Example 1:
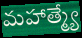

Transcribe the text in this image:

మహాత్మ్యే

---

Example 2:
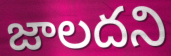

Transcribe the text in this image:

జాలదని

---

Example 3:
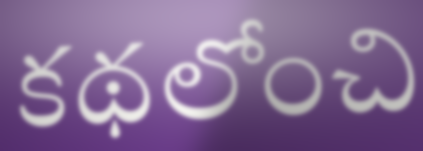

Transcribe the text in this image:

కథలోంచి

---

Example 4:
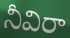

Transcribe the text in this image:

నీవిరా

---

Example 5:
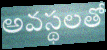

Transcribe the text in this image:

అవస్థలతో